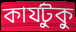
কার্যটুকু